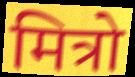
मित्रो